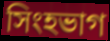
সিংহভাগ